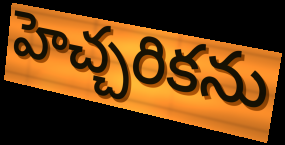
హెచ్చరికను